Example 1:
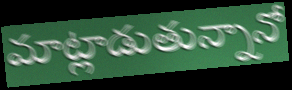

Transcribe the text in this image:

మాట్లాడుతున్నానో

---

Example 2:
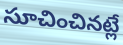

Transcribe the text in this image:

సూచించినట్లే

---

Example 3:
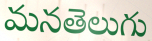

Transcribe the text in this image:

మనతెలుగు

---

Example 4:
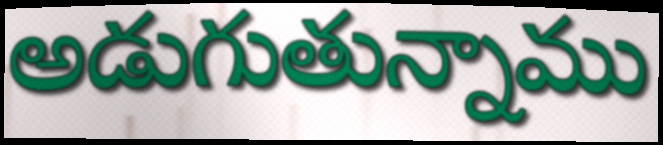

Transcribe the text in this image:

అడుగుతున్నాము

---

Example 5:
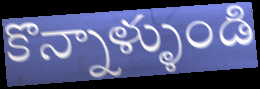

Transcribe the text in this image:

కొన్నాళ్ళుండి